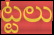
ట్టలు